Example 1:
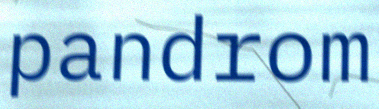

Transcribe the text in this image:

pandrom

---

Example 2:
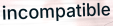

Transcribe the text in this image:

incompatible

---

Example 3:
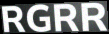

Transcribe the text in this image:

RGRR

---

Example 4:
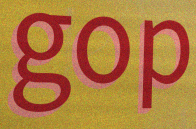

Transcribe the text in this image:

gop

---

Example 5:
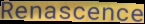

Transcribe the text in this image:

Renascence